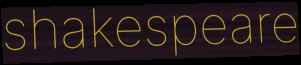
shakespeare